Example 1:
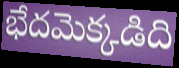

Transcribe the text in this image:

భేదమెక్కడిది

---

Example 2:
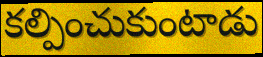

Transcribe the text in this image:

కల్పించుకుంటాడు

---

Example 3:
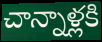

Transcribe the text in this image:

చాన్నాళ్లకి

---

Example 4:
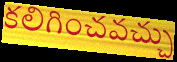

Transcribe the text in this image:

కలిగించవచ్చు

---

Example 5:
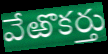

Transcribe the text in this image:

వేఱొకర్తు